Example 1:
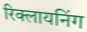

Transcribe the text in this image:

रिक्लायनिंग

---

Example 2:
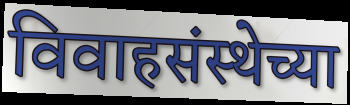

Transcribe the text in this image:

विवाहसंस्थेच्या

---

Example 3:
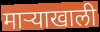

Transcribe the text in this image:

माऱ्याखाली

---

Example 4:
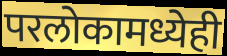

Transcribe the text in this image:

परलोकामध्येही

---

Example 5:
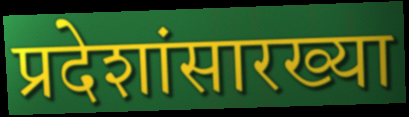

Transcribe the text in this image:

प्रदेशांसारख्या